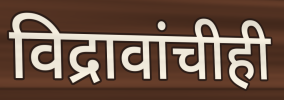
विद्रावांचीही